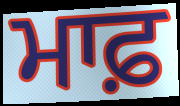
ਮਾਫ਼